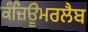
ਕੰਜ਼ਿਊਮਰਲੈਬ